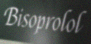
Bisoprolol